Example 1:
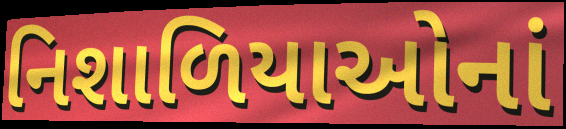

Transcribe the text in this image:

નિશાળિયાઓનાં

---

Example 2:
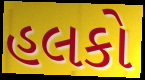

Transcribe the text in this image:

હલકો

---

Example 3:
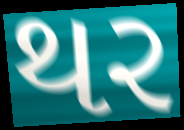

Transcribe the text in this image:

થર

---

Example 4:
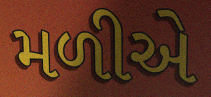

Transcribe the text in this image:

મળીએ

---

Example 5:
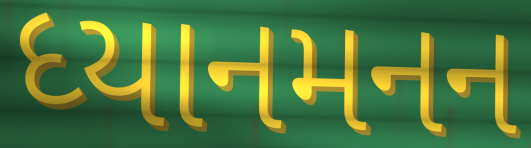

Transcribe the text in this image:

ધ્યાનમનન